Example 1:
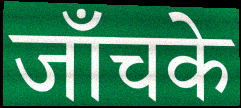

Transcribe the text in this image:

जाँचके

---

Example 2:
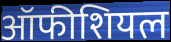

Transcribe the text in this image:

ऑफीशियल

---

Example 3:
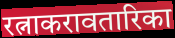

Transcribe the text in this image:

रत्नाकरावतारिका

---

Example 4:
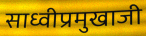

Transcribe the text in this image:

साध्वीप्रमुखाजी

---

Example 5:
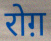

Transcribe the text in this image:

रोग़